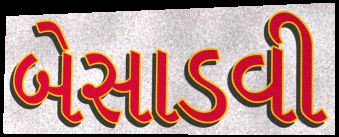
બેસાડવી